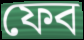
ফেব